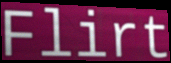
Flirt